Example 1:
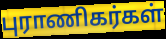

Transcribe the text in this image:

புராணிகர்கள்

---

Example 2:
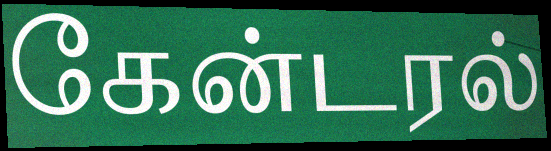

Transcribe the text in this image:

கேன்டரல்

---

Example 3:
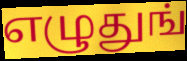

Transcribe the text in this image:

எழுதுங்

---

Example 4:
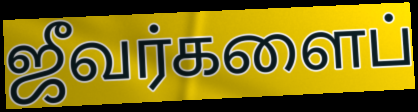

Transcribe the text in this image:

ஜீவர்களைப்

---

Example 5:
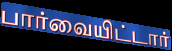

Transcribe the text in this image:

பார்வையிட்டார்